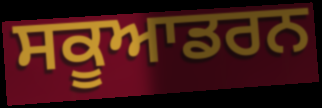
ਸਕੂਆਡਰਨ